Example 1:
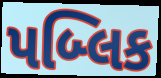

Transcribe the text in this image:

પબ્લિક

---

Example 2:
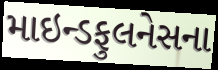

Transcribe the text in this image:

માઇન્ડફુલનેસના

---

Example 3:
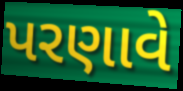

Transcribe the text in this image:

પરણાવે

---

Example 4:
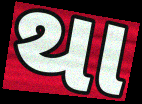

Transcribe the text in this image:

થા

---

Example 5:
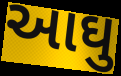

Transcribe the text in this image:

આઘુ